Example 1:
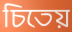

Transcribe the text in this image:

চিতেয়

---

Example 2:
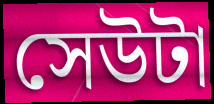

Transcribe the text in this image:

সেউটা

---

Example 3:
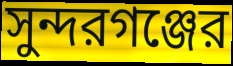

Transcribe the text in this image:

সুন্দরগঞ্জের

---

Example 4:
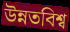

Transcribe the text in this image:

উন্নতবিশ্ব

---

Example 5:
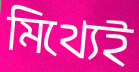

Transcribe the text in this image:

মিথ্যেই